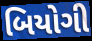
બિયોગી